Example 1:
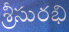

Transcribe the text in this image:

శ్రీసురభి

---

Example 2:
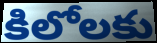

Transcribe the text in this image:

కిలోలకు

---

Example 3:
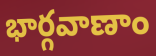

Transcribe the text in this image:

భార్గవాణాం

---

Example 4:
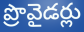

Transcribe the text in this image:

ప్రొవైడర్లు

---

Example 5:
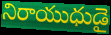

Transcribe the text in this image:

నిరాయుధుడై